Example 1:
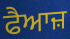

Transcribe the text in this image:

ਫੈਆਜ਼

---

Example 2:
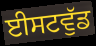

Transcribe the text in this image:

ਈਸਟਵੁੱਡ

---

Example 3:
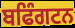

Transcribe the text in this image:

ਬਫਿੰਗਟਨ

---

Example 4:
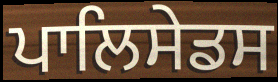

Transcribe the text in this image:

ਪਾਲਿਸੇਡਸ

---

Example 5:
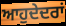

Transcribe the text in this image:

ਆਹੁਦੇਦਰਾਂ